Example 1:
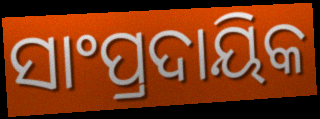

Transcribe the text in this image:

ସାଂପ୍ରଦାୟିକ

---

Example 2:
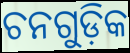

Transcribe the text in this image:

ଚନଗୁଡ଼ିକ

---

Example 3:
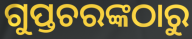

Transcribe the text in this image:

ଗୁପ୍ତଚରଙ୍କଠାରୁ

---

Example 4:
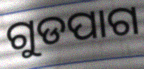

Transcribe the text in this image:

ଗୁଡପାଗ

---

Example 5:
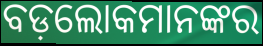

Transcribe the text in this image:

ବଡ଼ଲୋକମାନଙ୍କର